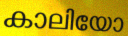
കാലിയോ